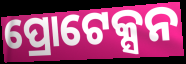
ପ୍ରୋଟେକ୍ସନ